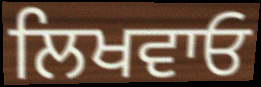
ਲਿਖਵਾਓ